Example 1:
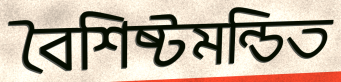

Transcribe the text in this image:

বৈশিষ্টমন্ডিত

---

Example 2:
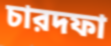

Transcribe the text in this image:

চারদফা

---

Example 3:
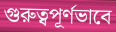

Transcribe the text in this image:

গুরুত্বপূর্ণভাবে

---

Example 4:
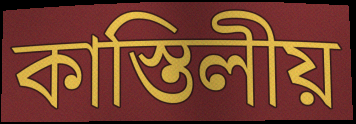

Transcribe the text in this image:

কাস্তিলীয়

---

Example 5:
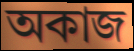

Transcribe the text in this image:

অকাজ